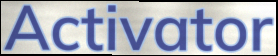
Activator